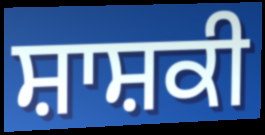
ਸ਼ਾਸ਼ਕੀ